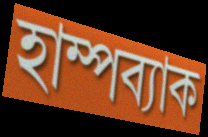
হাম্পব্যাক